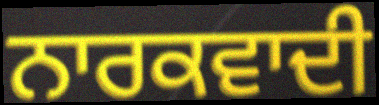
ਨਾਰਕਵਾਦੀ